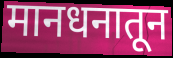
मानधनातून